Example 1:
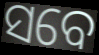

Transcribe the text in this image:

ସବେ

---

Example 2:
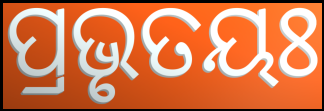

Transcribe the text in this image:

ପ୍ରଭୃତୟଃ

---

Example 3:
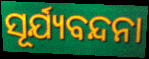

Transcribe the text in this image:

ସୂର୍ଯ୍ୟବନ୍ଦନା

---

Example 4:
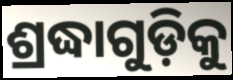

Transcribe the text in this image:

ଶ୍ରଦ୍ଧାଗୁଡ଼ିକୁ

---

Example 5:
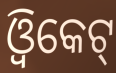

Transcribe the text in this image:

ଓ୍ଵିକେଟ୍